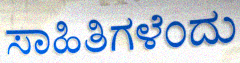
ಸಾಹಿತಿಗಳೆಂದು